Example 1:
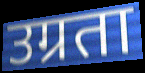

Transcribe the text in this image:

उग्रता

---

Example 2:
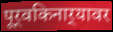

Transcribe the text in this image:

पूर्वकिनार्यावर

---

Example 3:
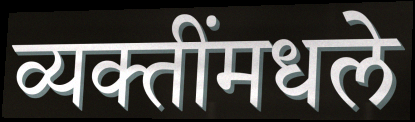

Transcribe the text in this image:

व्यक्तींमधले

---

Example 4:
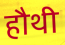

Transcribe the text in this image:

हौथी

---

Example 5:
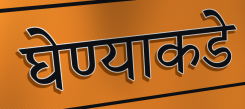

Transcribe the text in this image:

घेण्याकडे